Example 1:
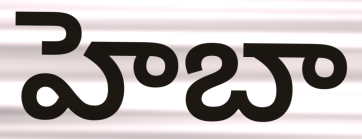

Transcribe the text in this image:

హెబా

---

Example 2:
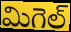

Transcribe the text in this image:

మిగెల్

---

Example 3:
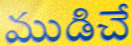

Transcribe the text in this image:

ముడిచే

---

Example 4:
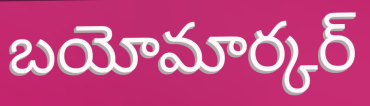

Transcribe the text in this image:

బయోమార్కర్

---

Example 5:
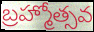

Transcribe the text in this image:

బ్రహ్మోత్సవ